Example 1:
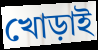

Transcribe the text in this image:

খোড়াই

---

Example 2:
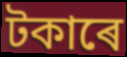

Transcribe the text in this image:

টকাৰে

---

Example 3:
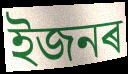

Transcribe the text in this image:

ইজনৰ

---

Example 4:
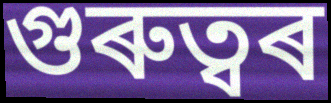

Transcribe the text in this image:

গুৰুত্বৰ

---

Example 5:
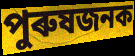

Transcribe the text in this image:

পুৰুষজনক